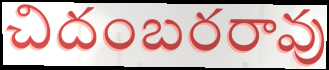
చిదంబరరావు